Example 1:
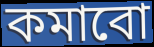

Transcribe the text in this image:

কমাবো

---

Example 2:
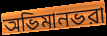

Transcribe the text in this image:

অভিমানভরা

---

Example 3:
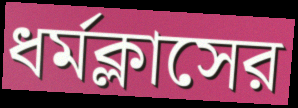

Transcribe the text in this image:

ধর্মক্লাসের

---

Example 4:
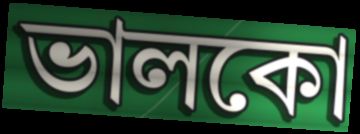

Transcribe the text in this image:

ভালকো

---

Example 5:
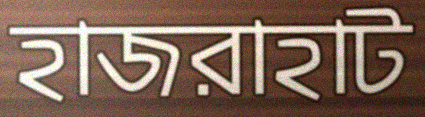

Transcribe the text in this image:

হাজরাহাট